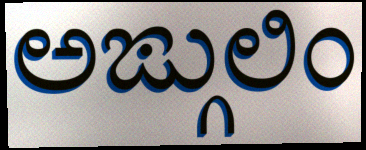
ಅಙ್ಗುಲಿಂ